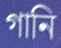
গানি